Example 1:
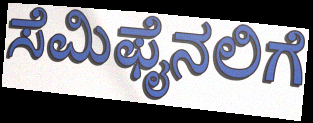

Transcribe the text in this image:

ಸೆಮಿಫೈನಲಿಗೆ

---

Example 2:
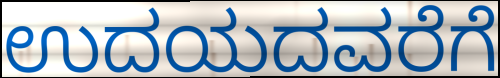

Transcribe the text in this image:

ಉದಯದವರೆಗೆ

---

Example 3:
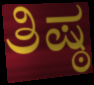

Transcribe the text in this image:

ತಿಷ್ಠ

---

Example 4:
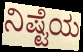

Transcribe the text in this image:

ನಿಷ್ಟೆಯ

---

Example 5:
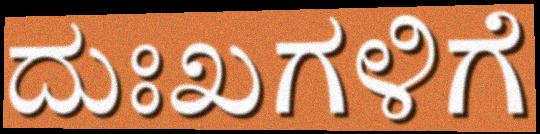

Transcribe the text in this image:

ದುಃಖಗಳಿಗೆ